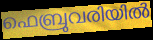
ഫെബ്രുവരിയിൽ